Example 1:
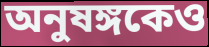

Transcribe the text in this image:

অনুষঙ্গকেও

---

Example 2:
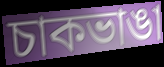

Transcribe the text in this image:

চাকভাঙা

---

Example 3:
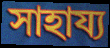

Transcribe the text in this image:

সাহায্য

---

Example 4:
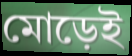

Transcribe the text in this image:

মোড়েই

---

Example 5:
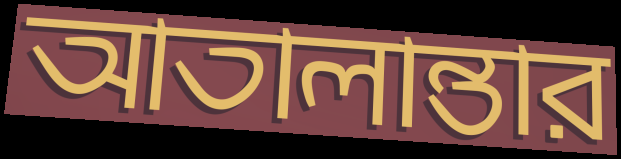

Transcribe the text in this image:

আতালান্তার